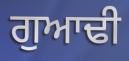
ਗੁਆਢੀ